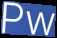
Pw